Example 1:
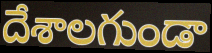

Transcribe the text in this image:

దేశాలగుండా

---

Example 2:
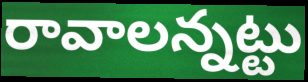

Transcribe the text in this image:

రావాలన్నట్టు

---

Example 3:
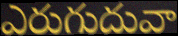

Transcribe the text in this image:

ఎరుగుదువా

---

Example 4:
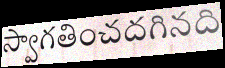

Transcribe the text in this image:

స్వాగతించదగినది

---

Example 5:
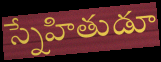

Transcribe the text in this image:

స్నేహితుడూ